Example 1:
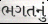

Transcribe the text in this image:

ભગતનું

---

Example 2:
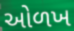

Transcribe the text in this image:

ઓળખ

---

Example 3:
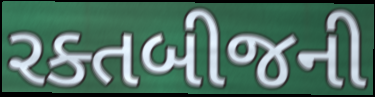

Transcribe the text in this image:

રક્તબીજની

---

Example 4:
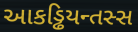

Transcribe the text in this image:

આકડ્ઢિયન્તસ્સ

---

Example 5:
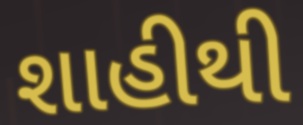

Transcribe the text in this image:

શાહીથી